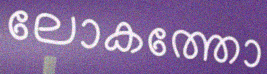
ലോകത്തോ